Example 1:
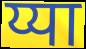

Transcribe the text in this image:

य्या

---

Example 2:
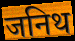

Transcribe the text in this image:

जनिथ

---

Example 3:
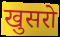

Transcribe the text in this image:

खुसरो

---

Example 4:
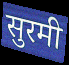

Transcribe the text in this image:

सुरमी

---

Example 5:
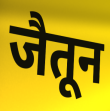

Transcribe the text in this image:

जैतून